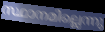
സ്ഥാനമില്ലെന്നു